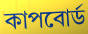
কাপবোর্ড